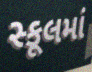
સ્કૂલમાં